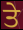
ਤੇ